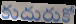
కుదురుకో